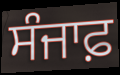
ਸੰਜਾਫ਼